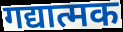
गद्यात्मक